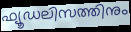
ഫ്യൂഡലിസത്തിനും